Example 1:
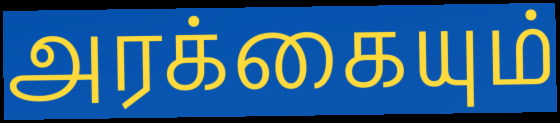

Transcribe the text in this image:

அரக்கையும்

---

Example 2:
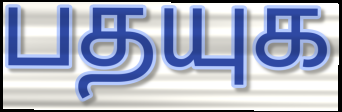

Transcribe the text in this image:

பதயுக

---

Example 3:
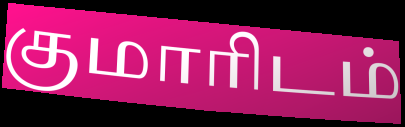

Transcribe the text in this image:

குமாரிடம்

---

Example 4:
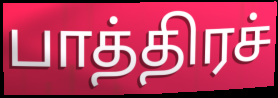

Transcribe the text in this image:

பாத்திரச்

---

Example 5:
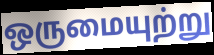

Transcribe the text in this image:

ஒருமையுற்று